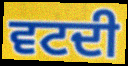
ਵਟਦੀ